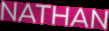
NATHAN